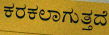
ಕರಕಲಾಗುತ್ತದೆ